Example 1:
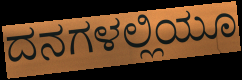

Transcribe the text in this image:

ದನಗಳಲ್ಲಿಯೂ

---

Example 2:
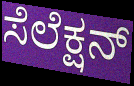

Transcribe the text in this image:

ಸೆಲೆಕ್ಷನ್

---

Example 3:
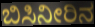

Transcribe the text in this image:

ಬಿಸಿನೀರಿನ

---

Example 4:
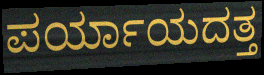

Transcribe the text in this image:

ಪರ್ಯಾಯದತ್ತ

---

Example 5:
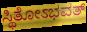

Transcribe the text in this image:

ಸ್ಥಿತೋಽಭವತ್